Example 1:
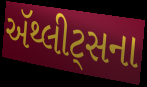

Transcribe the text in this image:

ઍથ્લીટ્સના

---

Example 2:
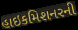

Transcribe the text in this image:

હાઇકમિશનરની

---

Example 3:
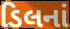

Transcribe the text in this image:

ડિલનાં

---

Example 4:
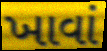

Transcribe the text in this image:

ખાવાં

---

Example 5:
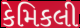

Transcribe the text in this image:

કેમિકલી